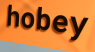
hobey